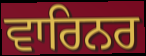
ਵਾਰਿਨਰ